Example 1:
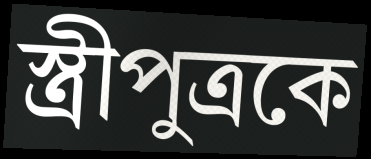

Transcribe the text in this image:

স্ত্রীপুত্রকে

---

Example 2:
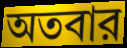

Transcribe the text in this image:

অতবার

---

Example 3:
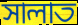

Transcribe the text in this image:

সালাত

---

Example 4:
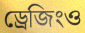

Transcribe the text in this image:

ড্রেজিংও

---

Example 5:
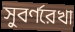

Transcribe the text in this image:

সুবর্ণরেখা